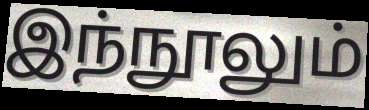
இந்நூலும்